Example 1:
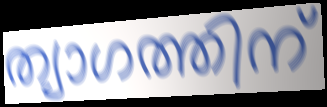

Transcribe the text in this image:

ത്യാഗത്തിന്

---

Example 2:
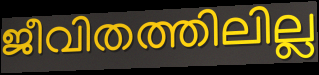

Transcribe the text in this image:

ജീവിതത്തിലില്ല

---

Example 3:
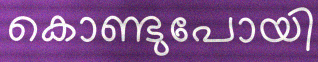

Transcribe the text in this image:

കൊണ്ടുപോയി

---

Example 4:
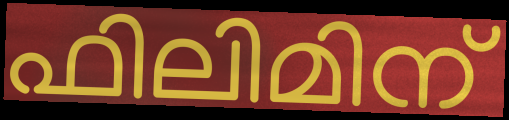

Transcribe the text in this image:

ഫിലിമിന്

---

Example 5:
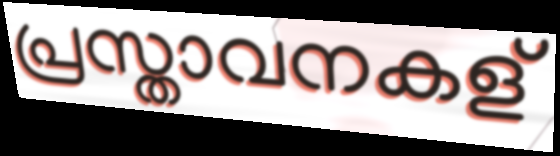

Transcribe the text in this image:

പ്രസ്താവനകള്